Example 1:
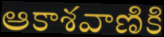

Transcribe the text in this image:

ఆకాశవాణికి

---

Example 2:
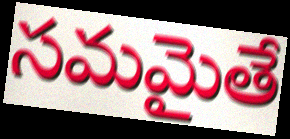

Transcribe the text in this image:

సమమైతే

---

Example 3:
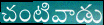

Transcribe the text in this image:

చంటివాడు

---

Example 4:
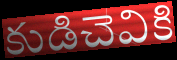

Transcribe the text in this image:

కుడిచెవికి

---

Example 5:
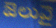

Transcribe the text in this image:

జెలువై